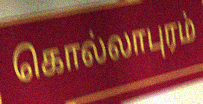
கொல்லாபுரம்